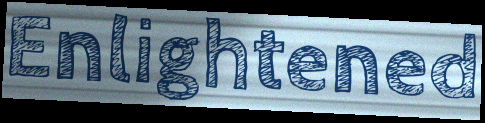
Enlightened